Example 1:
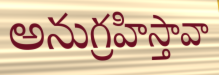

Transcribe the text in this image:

అనుగ్రహిస్తావా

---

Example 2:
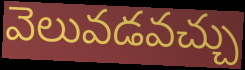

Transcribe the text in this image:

వెలువడవచ్చు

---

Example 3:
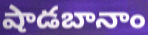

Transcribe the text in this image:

షాడబానాం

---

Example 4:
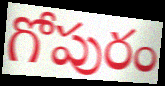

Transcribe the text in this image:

గోపురం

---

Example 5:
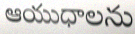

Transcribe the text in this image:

ఆయుధాలను